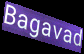
Bagavad